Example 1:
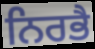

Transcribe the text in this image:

ਨਿਰਭੈ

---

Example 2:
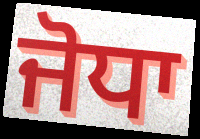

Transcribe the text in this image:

ਜੋਧਾ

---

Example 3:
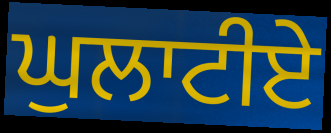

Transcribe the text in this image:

ਘੁਲਾਟੀਏ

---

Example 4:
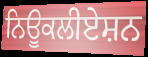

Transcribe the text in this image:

ਨਿਊਕਲੀਏਸ਼ਨ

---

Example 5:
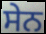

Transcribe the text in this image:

ਸੇਨ